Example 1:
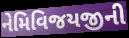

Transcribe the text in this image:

નેમિવિજયજીની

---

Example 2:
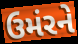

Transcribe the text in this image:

ઉમંરને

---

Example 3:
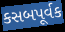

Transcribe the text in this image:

કસબપૂર્વક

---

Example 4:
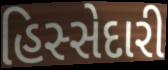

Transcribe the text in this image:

હિસ્સેદારી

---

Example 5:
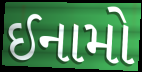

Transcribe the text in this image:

ઈનામો